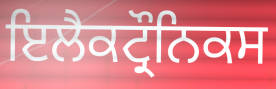
ਇਲੈਕਟ੍ਰੌਨਿਕਸ